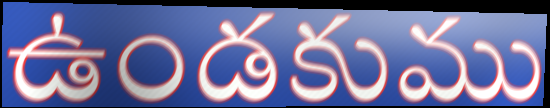
ఉండకుము